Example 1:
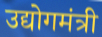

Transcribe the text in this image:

उद्योगमंत्री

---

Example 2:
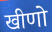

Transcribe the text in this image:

खीणो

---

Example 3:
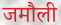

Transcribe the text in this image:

जमौली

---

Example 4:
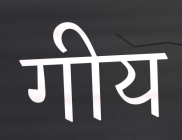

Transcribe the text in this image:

गीय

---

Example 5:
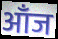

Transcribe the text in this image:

आँज